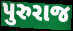
પુરુરાજ